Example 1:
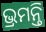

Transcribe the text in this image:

ଭ୍ରମନ୍ତି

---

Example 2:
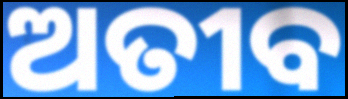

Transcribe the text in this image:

ଅତୀବ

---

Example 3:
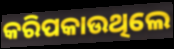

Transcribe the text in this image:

କରିପକାଉଥିଲେ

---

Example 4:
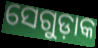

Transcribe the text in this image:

ସେଗୁଡ଼ାକ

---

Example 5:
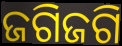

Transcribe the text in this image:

ଜଗିଜଗି